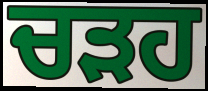
ਚੜਹ